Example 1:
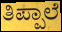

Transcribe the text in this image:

ತಿಪ್ಪಾಲೆ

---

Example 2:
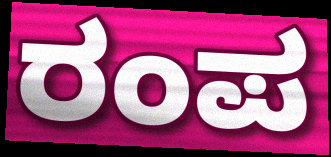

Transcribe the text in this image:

ರಂಪ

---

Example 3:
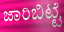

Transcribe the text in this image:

ಜಾರಿಬಿಟ್ಟೆ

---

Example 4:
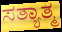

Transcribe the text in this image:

ಸತ್ಯಾತ್ಮ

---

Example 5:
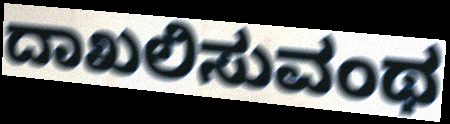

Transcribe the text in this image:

ದಾಖಲಿಸುವಂಥ